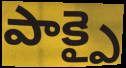
పాక్పై